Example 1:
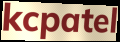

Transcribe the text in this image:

kcpatel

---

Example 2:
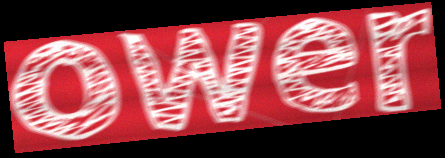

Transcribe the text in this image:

ower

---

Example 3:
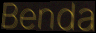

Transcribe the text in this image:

Benda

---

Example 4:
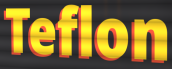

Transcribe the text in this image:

Teflon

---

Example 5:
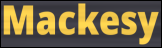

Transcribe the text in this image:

Mackesy